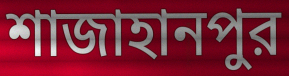
শাজাহানপুর